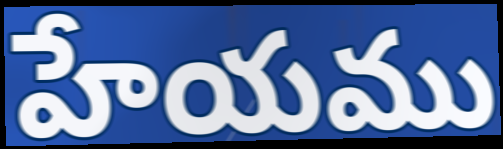
హేయము